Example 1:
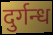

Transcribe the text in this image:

दुर्गन्‍ध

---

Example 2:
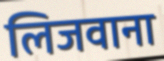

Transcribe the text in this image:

लिजवाना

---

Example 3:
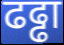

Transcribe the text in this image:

ढढ्ढा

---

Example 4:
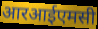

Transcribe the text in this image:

आरआईएमसी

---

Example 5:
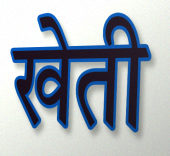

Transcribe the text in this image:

खेती